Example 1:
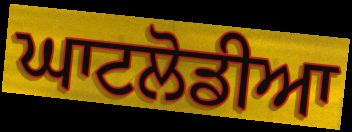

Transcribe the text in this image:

ਘਾਟਲੋਡੀਆ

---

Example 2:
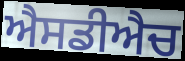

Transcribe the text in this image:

ਐਸਡੀਐਚ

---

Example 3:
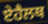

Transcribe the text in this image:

ਏਹੈਲਥ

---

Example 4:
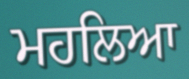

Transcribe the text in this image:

ਮਹਲਿਆ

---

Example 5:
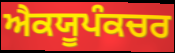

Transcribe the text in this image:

ਐਕਯੂਪੰਕਚਰ